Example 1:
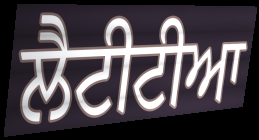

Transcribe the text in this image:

ਲੈਟੀਟੀਆ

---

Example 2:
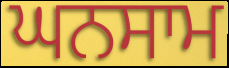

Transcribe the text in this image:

ਘਨਸਾਮ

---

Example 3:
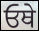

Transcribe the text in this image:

ਓਥੇ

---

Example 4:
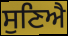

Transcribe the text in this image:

ਸੁਣਿਐ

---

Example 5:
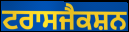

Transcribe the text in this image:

ਟਰਾਸਜੈਕਸ਼ਨ